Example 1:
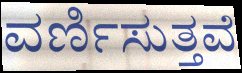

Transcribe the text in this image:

ವರ್ಣಿಸುತ್ತವೆ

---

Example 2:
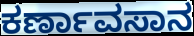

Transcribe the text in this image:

ಕರ್ಣಾವಸಾನ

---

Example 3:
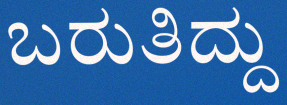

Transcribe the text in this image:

ಬರುತಿದ್ದು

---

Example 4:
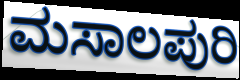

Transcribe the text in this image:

ಮಸಾಲಪುರಿ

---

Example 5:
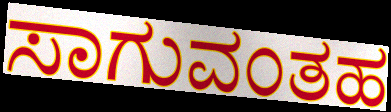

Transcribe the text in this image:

ಸಾಗುವಂತಹ